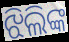
ଝିଲିଙ୍କ